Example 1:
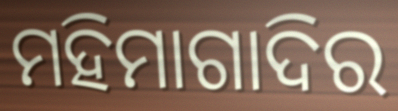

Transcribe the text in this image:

ମହିମାଗାଦିର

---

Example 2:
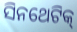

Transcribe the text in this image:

ସିନଥେଟିକ୍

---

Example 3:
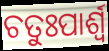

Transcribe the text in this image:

ଚତୁଃପାର୍ଶ୍ବ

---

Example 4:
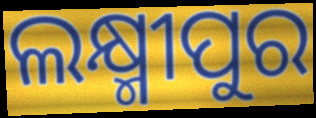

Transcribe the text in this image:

ଲକ୍ଷ୍ମୀପୁର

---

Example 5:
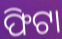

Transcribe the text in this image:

ଫିଟା